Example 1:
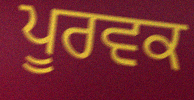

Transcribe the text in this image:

ਪੂਰਵਕ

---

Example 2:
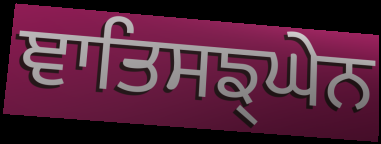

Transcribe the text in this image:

ਞਾਤਿਸਙ੍ਘੇਨ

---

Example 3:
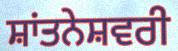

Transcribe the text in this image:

ਸ਼ਾਂਤਨੇਸ਼ਵਰੀ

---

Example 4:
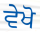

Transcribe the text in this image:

ਵੇਖੋ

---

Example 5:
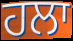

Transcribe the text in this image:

ਹਲਾ